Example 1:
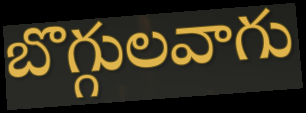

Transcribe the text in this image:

బొగ్గులవాగు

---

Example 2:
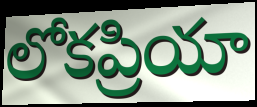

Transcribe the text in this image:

లోకప్రియా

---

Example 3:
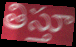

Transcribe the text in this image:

తిస్తూ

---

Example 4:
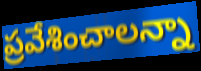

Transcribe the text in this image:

ప్రవేశించాలన్నా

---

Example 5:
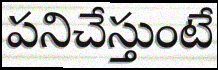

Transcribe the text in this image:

పనిచేస్తుంటే